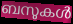
ബസുകൾ